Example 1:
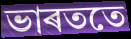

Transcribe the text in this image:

ভাৰততে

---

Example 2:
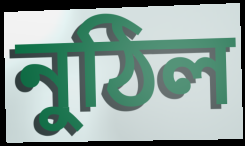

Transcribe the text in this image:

নুঠিল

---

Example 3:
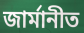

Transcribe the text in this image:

জাৰ্মানীত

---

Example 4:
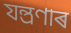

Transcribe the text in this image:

যন্ত্ৰণাৰ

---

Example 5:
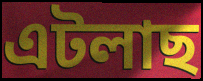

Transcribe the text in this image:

এটলাছ